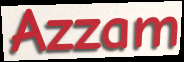
Azzam